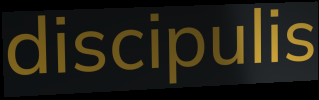
discipulis